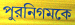
পুরনিগমকে